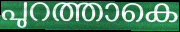
പുറത്താകെ